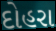
દોહરા